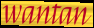
wantan